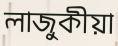
লাজুকীয়া